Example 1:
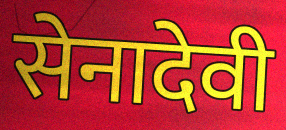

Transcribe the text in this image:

सेनादेवी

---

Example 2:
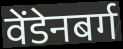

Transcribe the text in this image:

वेंडेनबर्ग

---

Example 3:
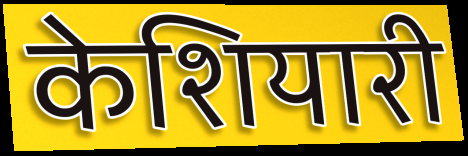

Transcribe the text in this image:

केशियारी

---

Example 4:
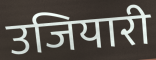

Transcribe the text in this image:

उजियारी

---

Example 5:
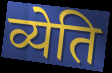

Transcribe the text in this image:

व्येति